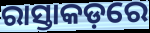
ରାସ୍ତାକଡ଼ରେ